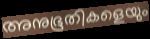
അനുഭൂതികളെയും